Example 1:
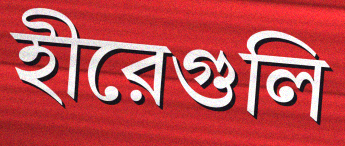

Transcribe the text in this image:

হীরেগুলি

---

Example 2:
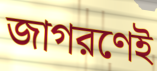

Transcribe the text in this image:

জাগরণেই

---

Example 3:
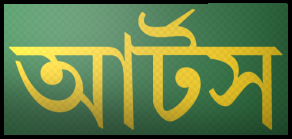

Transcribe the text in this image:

আর্টস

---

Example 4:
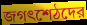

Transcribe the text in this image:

জগৎশেঠদের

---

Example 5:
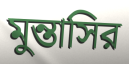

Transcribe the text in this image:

মুন্তাসির